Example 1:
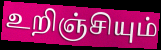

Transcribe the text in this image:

உறிஞ்சியும்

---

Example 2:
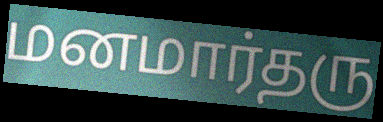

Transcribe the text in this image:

மனமார்தரு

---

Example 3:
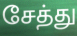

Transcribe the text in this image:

சேத்து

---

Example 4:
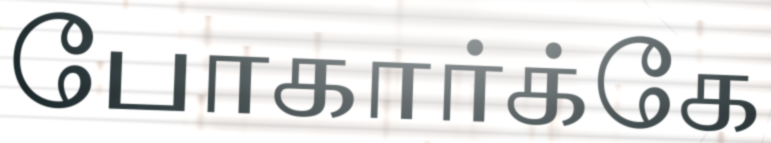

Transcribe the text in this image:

போகார்க்கே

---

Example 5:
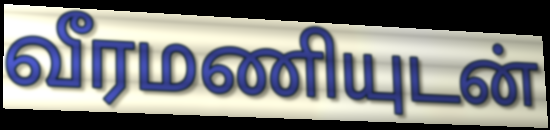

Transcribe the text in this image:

வீரமணியுடன்